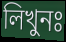
লিখুনঃ